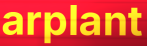
arplant